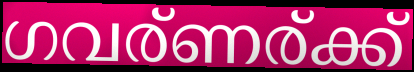
ഗവര്ണര്ക്ക്